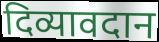
दिव्यावदान